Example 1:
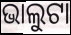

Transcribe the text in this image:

ଭାଲୁଟା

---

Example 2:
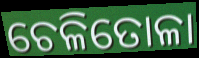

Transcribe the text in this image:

ଚେଳିତୋଳା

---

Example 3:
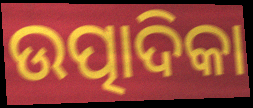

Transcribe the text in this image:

ଉତ୍ପାଦିକା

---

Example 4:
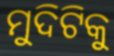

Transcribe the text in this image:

ମୁଦିଟିକୁ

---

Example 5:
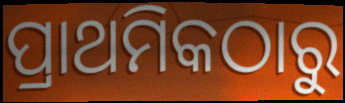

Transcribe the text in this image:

ପ୍ରାଥମିକଠାରୁ